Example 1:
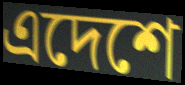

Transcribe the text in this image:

এদেশে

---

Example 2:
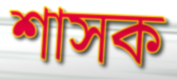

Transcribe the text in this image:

শাসক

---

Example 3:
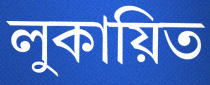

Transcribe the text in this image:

লুকায়িত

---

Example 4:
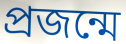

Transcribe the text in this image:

প্রজন্মে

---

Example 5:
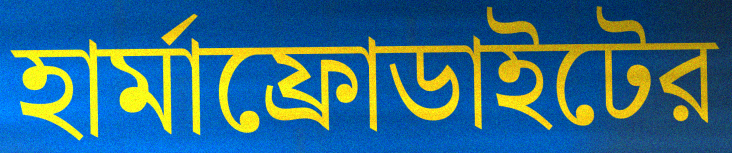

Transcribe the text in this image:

হার্মাফ্রোডাইটের